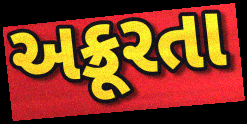
અક્રૂરતા